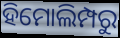
ହିମୋଲିମ୍ପରୁ